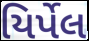
યિર્પેલ